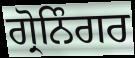
ਗ੍ਰੋਨਿੰਗਰ